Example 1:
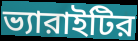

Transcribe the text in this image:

ভ্যারাইটির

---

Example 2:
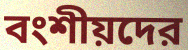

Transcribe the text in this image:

বংশীয়দের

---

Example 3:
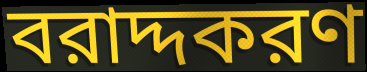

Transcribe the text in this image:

বরাদ্দকরণ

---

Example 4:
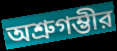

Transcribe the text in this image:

অশ্রুগম্ভীর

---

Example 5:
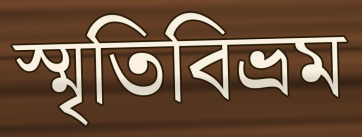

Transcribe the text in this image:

স্মৃতিবিভ্রম